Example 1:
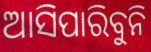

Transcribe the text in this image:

ଆସିପାରିବୁନି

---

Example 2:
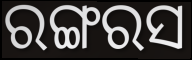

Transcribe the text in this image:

ରଙ୍ଗରସ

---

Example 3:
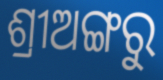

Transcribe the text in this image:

ଶ୍ରୀଅଙ୍ଗରୁ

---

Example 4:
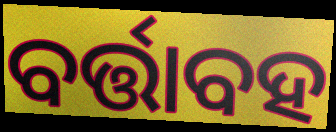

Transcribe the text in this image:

ବର୍ତ୍ତାବହ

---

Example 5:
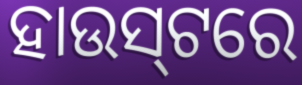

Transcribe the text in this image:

ହାଉସ୍‌ଟରେ